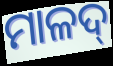
ମାଳଦ୍